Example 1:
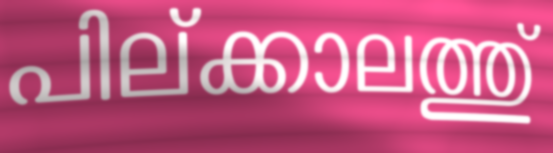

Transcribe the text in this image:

പില്ക്കാലത്തു്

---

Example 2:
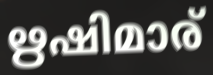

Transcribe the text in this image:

ഋഷിമാര്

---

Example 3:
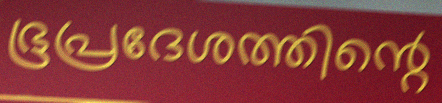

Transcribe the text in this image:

ഭൂപ്രദേശത്തിന്റെ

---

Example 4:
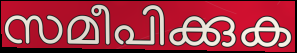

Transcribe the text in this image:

സമീപിക്കുക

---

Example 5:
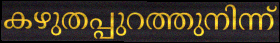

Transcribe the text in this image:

കഴുതപ്പുറത്തുനിന്ന്